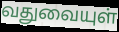
வதுவையுள்